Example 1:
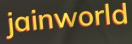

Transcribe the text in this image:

jainworld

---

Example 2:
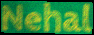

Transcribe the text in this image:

Nehal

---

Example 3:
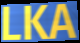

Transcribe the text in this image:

LKA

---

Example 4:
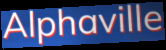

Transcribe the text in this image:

Alphaville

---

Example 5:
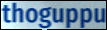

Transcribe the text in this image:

thoguppu